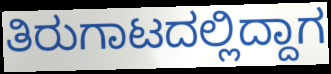
ತಿರುಗಾಟದಲ್ಲಿದ್ದಾಗ